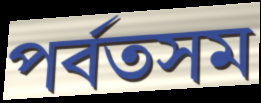
পর্বতসম